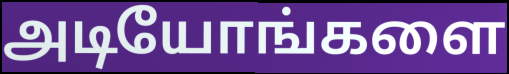
அடியோங்களை